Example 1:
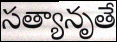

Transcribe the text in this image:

సత్యానృతే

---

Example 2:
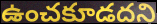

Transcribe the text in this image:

ఉంచకూడదని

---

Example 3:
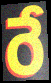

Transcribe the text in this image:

రే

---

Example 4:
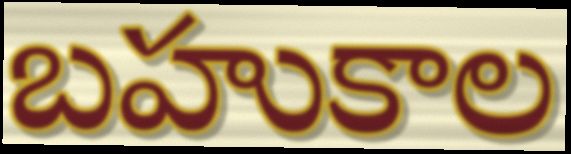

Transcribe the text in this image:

బహుకాల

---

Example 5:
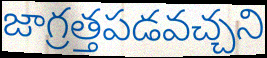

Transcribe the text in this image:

జాగ్రత్తపడవచ్చని